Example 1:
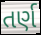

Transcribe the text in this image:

તર્ણ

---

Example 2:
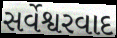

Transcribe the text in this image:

સર્વેશ્વરવાદ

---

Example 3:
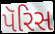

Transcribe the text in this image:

પૅરિસ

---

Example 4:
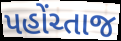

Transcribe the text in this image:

પહોંચ્તાજ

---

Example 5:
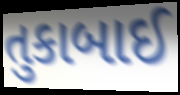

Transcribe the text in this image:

તુકાબાઈ